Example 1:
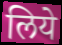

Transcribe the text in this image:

लिये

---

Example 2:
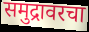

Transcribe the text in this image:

समुद्रावरचा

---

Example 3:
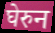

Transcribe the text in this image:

घेरुन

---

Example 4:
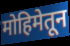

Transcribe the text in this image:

मोहिमेतून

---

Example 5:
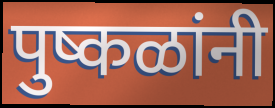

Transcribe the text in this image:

पुष्कळांनी